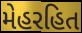
મેહરહિત